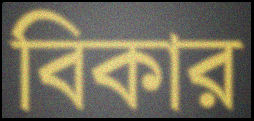
বিকার